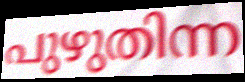
പുഴുതിന്ന